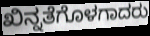
ಖಿನ್ನತೆಗೊಳಗಾದರು